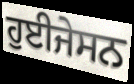
ਹੁਈਜੇਸਨ